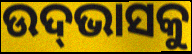
ଉଦ୍‌ଭାସକୁ